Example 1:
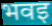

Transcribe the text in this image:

भवइ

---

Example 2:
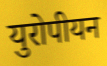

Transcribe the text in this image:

युरोपीयन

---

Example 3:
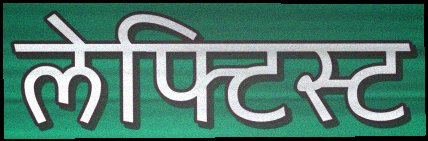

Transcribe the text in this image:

लेफ्टिस्ट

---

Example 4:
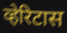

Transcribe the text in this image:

व्हेरिटास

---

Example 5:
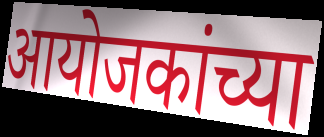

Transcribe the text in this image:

आयोजकांच्या